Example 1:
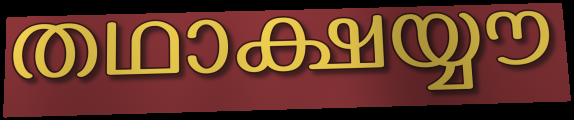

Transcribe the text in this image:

തഥാക്ഷയ്യൗ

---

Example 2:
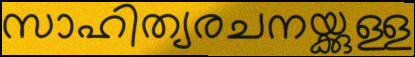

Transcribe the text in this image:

സാഹിത്യരചനയ്ക്കുള്ള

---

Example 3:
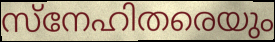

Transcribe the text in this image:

സ്നേഹിതരെയും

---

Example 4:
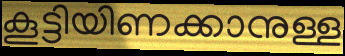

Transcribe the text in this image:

കൂട്ടിയിണക്കാനുള്ള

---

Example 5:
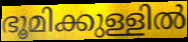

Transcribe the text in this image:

ഭൂമിക്കുള്ളിൽ